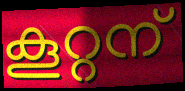
കൂറ്റന്